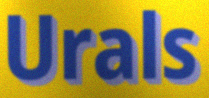
Urals